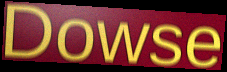
Dowse